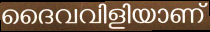
ദൈവവിളിയാണ്